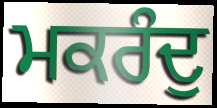
ਮਕਰੰਦੁ